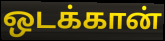
ஒடக்கான்